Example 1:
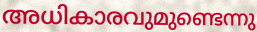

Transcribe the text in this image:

അധികാരവുമുണ്ടെന്നു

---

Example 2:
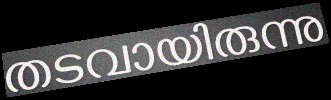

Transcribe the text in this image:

തടവായിരുന്നു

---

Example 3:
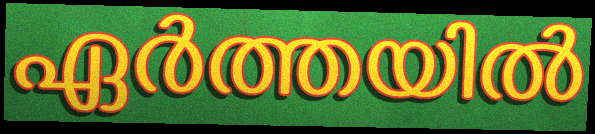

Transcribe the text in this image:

ഏർത്തയിൽ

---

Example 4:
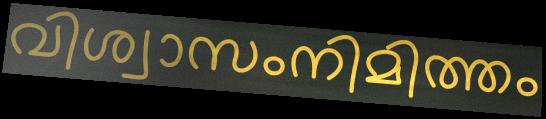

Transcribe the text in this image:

വിശ്വാസംനിമിത്തം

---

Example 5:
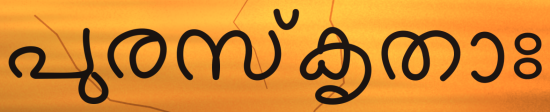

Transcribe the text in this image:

പുരസ്കൃതാഃ